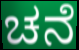
ಚನೆ